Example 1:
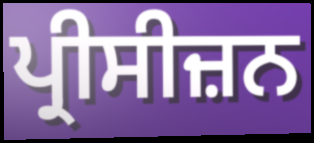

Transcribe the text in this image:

ਪ੍ਰੀਸੀਜ਼ਨ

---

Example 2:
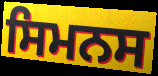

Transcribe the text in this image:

ਸਿਮਨਸ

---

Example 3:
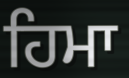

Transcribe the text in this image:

ਹਿਮਾ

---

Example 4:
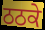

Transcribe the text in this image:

ਠਠਕੇ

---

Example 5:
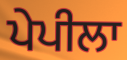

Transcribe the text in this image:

ਪੇਪੀਲਾ